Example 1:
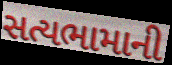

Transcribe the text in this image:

સત્યભામાની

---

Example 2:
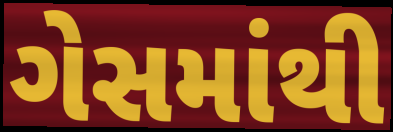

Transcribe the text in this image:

ગેસમાંથી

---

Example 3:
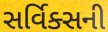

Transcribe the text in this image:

સર્વિક્સની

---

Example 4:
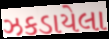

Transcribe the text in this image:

ઝકડાયેલા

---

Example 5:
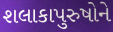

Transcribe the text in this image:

શલાકાપુરુષોને